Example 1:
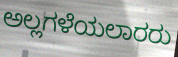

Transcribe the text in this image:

ಅಲ್ಲಗಳೆಯಲಾರರು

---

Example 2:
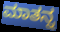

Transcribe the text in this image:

ಮಾತನ್ನ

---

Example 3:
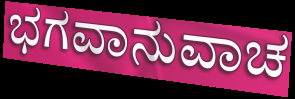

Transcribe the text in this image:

ಭಗವಾನುವಾಚ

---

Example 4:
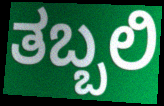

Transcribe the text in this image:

ತಬ್ಬಲಿ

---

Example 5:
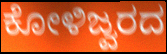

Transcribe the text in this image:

ಕೋಳಿಜ್ವರದ